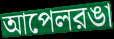
আপেলরঙা